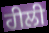
ਹੀਲੀ